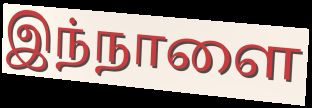
இந்நாளை